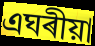
এঘৰীয়া